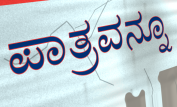
ಪಾತ್ರವನ್ನೂ